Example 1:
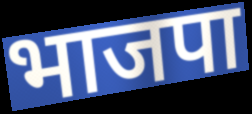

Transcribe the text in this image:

भाजपा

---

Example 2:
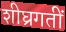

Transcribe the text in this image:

शीघ्रगतीं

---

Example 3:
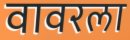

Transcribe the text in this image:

वावरला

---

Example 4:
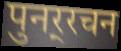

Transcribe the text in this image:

पुनर्रचन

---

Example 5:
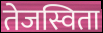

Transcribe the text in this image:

तेजस्विता